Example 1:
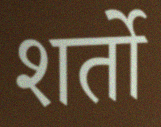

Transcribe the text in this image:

शर्तो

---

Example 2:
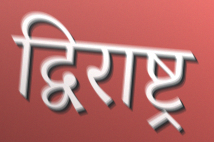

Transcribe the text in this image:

द्विराष्ट्र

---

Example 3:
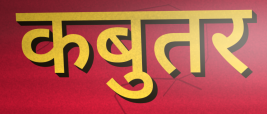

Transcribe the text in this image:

कबुतर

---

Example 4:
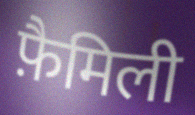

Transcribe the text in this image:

फ़ैमिली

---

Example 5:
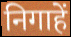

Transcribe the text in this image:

निगाहें